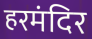
हरमंदिर